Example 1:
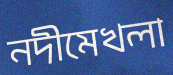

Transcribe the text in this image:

নদীমেখলা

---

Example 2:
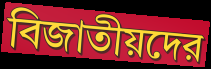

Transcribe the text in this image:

বিজাতীয়দের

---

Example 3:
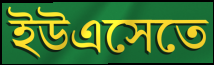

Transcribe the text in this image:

ইউএসেতে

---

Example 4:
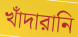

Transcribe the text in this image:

খাঁদারানি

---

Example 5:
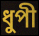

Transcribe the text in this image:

ধুপী